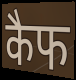
कैफ